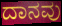
ದಾನವು